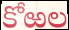
కోఱల